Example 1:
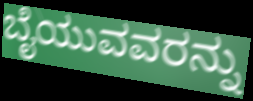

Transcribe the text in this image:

ಬೈಯುವವರನ್ನು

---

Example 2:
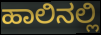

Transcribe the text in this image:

ಹಾಲಿನಲ್ಲಿ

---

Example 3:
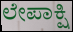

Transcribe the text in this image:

ಲೇಪಾಕ್ಷಿ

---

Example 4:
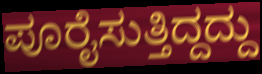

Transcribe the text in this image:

ಪೂರೈಸುತ್ತಿದ್ದದ್ದು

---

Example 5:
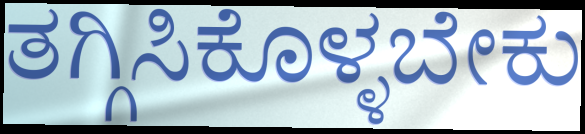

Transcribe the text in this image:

ತಗ್ಗಿಸಿಕೊಳ್ಳಬೇಕು